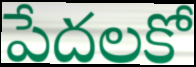
పేదలకో